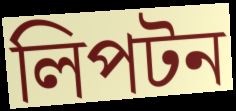
লিপটন